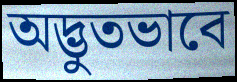
অদ্ভুতভাবে